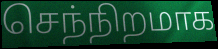
செந்நிறமாக